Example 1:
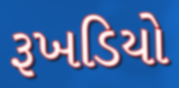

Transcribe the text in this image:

રૂખડિયો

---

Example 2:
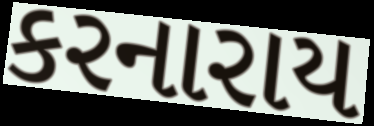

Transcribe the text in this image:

કરનારાય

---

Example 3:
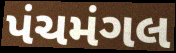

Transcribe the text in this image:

પંચમંગલ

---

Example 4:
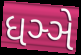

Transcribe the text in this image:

ધઞ્ઞે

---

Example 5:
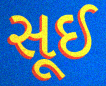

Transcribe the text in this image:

સૂઈ